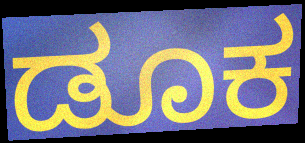
ಡೂಕ